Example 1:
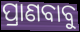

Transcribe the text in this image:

ପ୍ରାଣବାବୁ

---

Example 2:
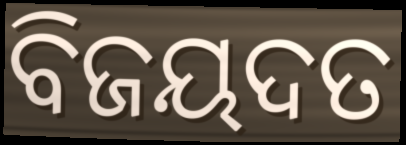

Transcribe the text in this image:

ବିଜୟଦତ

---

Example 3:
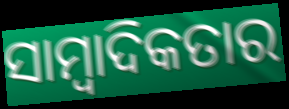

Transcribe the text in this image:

ସାମ୍ୱାଦିକତାର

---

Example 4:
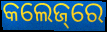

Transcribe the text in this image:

କଲେଜ୍‌ରେ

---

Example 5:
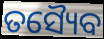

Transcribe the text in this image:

ତସ୍ୟୈବ